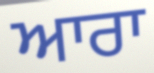
ਆਰਾ